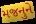
મજનુને